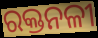
ରକ୍ତନଳୀ